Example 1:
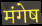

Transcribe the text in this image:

मंगेष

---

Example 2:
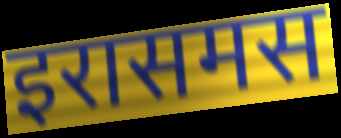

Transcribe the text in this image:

इरासमस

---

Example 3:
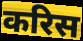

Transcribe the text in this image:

करिस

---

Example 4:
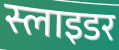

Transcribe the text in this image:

स्लाइडर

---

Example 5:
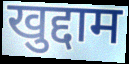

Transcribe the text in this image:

खुद्दाम